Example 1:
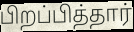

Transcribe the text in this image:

பிறப்பித்தார்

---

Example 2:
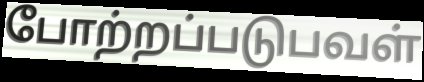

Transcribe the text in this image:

போற்றப்படுபவள்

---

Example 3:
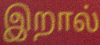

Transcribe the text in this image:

இறால்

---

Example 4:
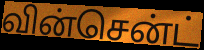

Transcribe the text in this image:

வின்சென்ட்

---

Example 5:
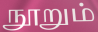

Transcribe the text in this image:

நூறும்